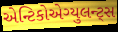
એન્ટિકોએગ્યુલન્ટ્સ